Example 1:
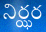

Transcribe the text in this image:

నిర్ఝర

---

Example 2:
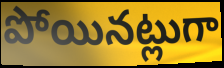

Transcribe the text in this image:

పోయినట్లుగా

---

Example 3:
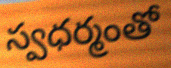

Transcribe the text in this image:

స్వధర్మంతో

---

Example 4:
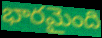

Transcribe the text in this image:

భారమైంది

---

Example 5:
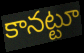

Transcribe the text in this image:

కానట్టూ